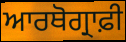
ਆਰਥੋਗ੍ਰਾਫ਼ੀ